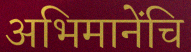
अभिमानेंचि